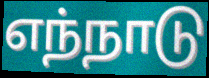
எந்நாடு